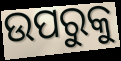
ଉପରୁକୁ